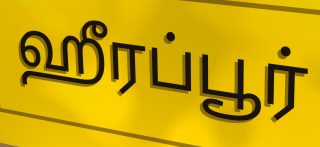
ஹீரப்பூர்